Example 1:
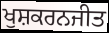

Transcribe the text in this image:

ਖੁਸ਼ਕਰਨਜੀਤ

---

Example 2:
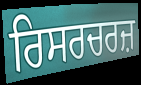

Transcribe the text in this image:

ਰਿਸਰਚਰਜ਼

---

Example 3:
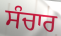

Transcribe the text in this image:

ਸੰਚਾਰ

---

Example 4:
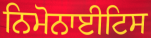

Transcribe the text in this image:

ਨਿਮੋਨਾਈਟਿਸ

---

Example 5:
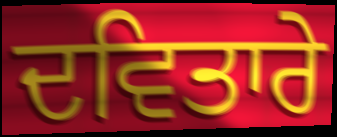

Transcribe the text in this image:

ਦਵਿਤਾਰੇ